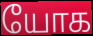
யோக